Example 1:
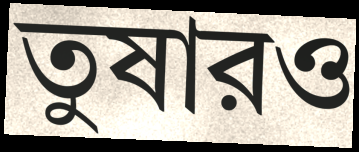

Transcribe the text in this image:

তুষারও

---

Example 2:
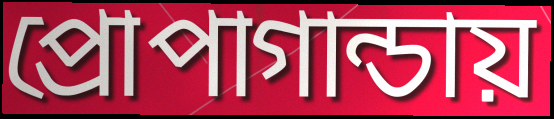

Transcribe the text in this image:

প্রোপাগান্ডায়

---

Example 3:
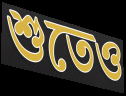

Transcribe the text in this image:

শুতেও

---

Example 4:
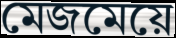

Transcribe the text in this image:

মেজমেয়ে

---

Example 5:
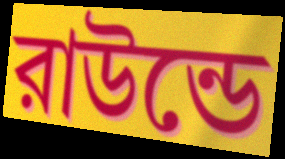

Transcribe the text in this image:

রাউন্ডে